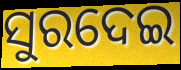
ସୁରଦେଇ